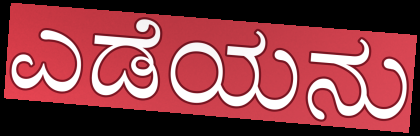
ಎಡೆಯನು